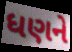
ધણને